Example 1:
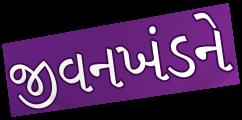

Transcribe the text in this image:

જીવનખંડને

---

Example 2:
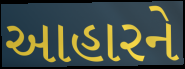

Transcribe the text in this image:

આહારને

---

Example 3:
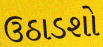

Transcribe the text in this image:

ઉઠાડશો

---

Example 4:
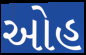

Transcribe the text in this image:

ઓહ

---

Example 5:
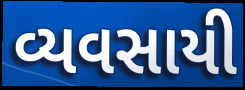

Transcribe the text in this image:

વ્યવસાયી